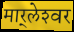
मार्लेश्वर